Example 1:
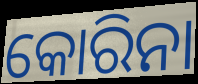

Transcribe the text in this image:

କୋରିନା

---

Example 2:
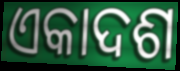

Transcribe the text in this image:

ଏକାଦଶ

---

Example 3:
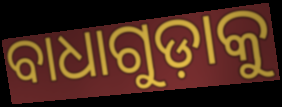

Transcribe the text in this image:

ବାଧାଗୁଡ଼ାକୁ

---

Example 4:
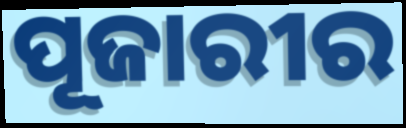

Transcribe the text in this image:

ପୂଜାରୀର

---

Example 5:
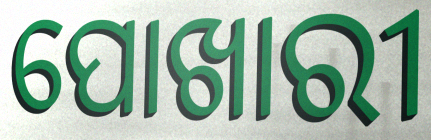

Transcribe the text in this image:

ପୋଖାରୀ